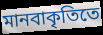
মানবাকৃতিতে